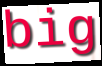
big